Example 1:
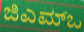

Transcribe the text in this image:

ಜಿಎಮ್ಒ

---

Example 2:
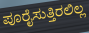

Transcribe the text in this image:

ಪೂರೈಸುತ್ತಿರಲಿಲ್ಲ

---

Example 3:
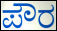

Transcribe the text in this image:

ಪೌರ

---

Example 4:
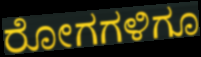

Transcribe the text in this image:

ರೋಗಗಳಿಗೂ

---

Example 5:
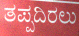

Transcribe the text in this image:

ತಪ್ಪದಿರಲು